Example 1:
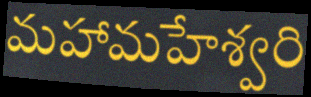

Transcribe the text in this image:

మహామహేశ్వరి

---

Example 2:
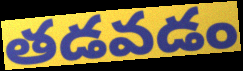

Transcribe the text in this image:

తడవడం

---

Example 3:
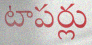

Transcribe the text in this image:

టాపర్లు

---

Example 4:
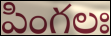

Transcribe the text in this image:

పింగలః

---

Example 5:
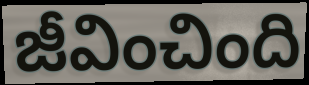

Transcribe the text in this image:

జీవించింది